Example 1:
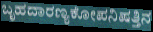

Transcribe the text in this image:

ಬೃಹದಾರಣ್ಯಕೋಪನಿಷತ್ತಿನ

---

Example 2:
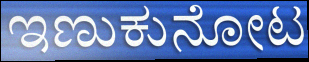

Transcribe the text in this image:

ಇಣುಕುನೋಟ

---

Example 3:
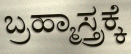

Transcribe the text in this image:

ಬ್ರಹ್ಮಾಸ್ತ್ರಕ್ಕೆ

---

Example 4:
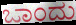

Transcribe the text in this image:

ಒಾಂದು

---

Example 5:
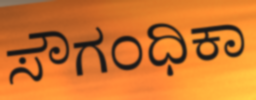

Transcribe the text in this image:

ಸೌಗಂಧಿಕಾ